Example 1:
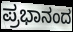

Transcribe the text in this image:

ಪ್ರಭಾನಂದ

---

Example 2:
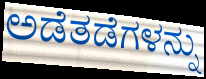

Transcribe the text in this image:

ಅಡೆತಡೆಗಳನ್ನು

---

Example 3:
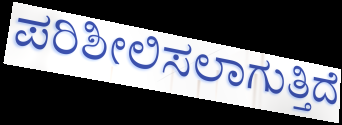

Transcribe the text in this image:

ಪರಿಶೀಲಿಸಲಾಗುತ್ತಿದೆ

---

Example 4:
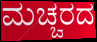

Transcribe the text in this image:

ಮಚ್ಚರದ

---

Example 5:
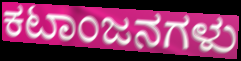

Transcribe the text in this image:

ಕಟಾಂಜನಗಳು